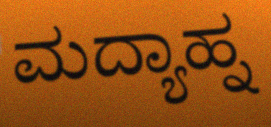
ಮದ್ಯಾಹ್ನ